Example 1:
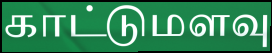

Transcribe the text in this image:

காட்டுமளவு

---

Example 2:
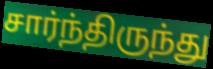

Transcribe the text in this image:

சார்ந்திருந்து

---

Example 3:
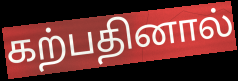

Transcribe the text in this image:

கற்பதினால்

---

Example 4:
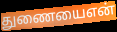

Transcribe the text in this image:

துணையைஎன்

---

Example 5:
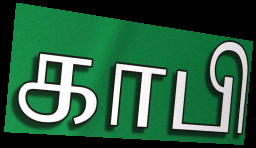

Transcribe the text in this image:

காபி